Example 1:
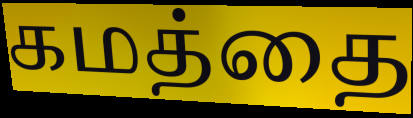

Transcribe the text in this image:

கமத்தை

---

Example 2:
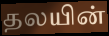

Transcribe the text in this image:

தலயின்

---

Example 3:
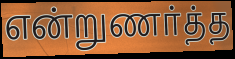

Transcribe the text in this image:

என்றுணர்த்த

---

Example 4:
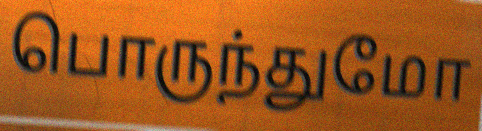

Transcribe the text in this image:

பொருந்துமோ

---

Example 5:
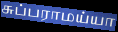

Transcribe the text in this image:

சுப்பராமய்யா